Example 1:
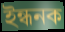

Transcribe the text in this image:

ইন্ধনক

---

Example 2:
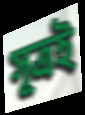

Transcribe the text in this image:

সূত্ৰই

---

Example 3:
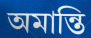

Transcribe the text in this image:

অমান্তি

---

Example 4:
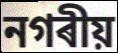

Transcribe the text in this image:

নগৰীয়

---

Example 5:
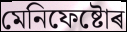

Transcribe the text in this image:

মেনিফেষ্টোৰ